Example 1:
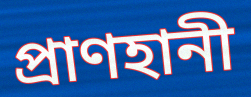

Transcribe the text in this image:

প্রাণহানী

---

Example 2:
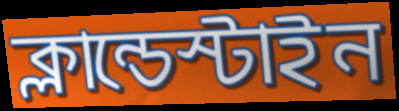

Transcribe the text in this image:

ক্লান্ডেস্টাইন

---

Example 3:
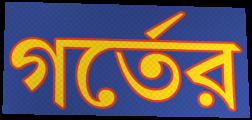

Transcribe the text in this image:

গর্তের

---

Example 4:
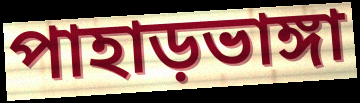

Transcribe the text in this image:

পাহাড়ভাঙ্গা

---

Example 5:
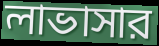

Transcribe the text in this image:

লাভাসার